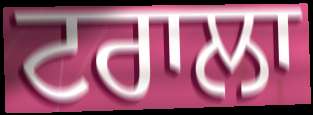
ਟਰਾਲਾ